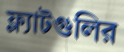
ফ্ল্যাটগুলির